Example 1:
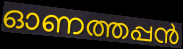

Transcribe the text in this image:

ഓണത്തപ്പൻ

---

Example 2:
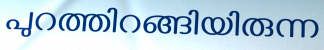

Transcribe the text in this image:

പുറത്തിറങ്ങിയിരുന്ന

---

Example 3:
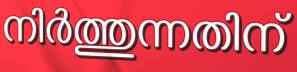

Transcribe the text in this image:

നിർത്തുന്നതിന്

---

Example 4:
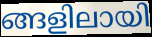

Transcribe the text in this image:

ങ്ങളിലായി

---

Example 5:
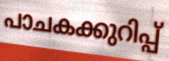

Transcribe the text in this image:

പാചകക്കുറിപ്പ്